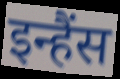
इन्हैंस